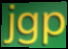
jgp